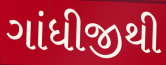
ગાંધીજીથી